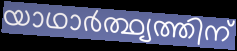
യാഥാർത്ഥ്യത്തിന്